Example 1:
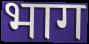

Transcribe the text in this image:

भाग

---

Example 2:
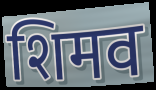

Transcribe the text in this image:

शिमव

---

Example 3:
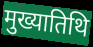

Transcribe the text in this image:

मुख्यातिथि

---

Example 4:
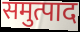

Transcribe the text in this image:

समुत्पाद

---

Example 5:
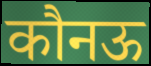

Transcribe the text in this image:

कौनऊ